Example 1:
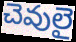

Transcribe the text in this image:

చెవులై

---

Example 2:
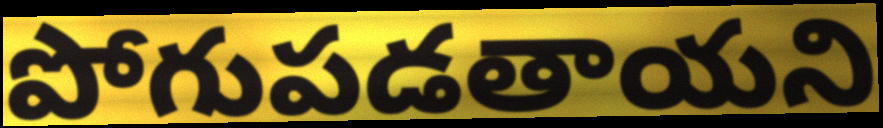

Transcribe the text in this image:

పోగుపడతాయని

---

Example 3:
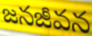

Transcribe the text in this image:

జనజీవన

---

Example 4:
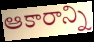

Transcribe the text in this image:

ఆకారాన్ని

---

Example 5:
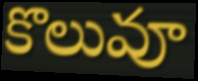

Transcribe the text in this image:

కొలువూ